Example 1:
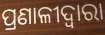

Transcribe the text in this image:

ପ୍ରଣାଳୀଦ୍ୱାରା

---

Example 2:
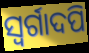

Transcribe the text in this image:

ସ୍ୱର୍ଗାଦପି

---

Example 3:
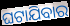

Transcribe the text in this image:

ଘଟାଯିବାର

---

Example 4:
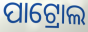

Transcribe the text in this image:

ପାଟ୍ରୋଲ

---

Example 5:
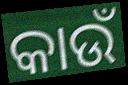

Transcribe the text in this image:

କାଉଁ